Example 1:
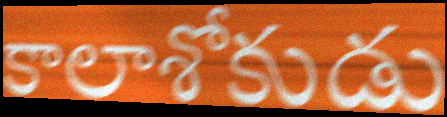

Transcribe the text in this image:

కాలాశోకుడు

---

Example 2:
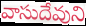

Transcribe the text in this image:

వాసుదేవుని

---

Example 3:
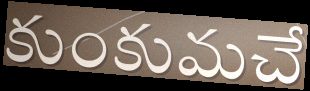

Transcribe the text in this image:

కుంకుమచే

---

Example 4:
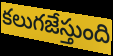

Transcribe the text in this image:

కలుగజేస్తుంది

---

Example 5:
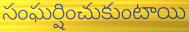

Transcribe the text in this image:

సంఘర్షించుకుంటాయి